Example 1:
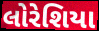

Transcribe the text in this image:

લોરેશિયા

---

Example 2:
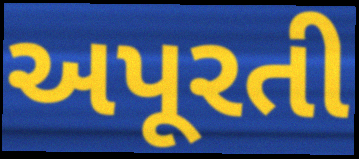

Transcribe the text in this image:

અપૂરતી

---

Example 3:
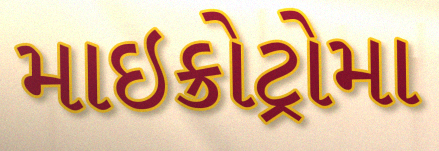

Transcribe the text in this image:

માઇક્રોટ્રોમા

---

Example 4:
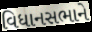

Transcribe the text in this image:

વિધાનસભાને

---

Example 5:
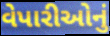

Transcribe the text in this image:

વેપારીઓનું